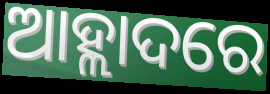
ଆହ୍ଲାଦରେ